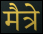
मैत्रे